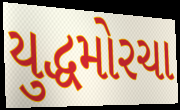
યુદ્ધમોરચા